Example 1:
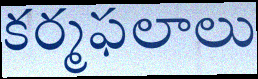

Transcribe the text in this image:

కర్మఫలాలు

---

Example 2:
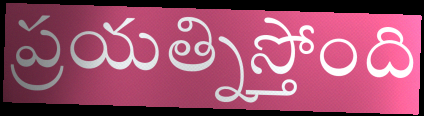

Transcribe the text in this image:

ప్రయత్నిస్తోంది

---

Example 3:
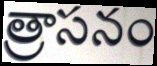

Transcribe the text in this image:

త్రాసనం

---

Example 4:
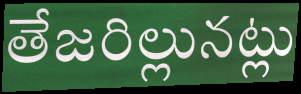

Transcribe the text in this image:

తేజరిల్లునట్లు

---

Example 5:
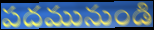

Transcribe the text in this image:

పదమునుండి